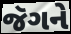
જૅગને